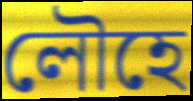
লৌহে